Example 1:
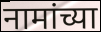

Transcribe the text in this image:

नामांच्या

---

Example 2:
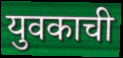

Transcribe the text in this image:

युवकाची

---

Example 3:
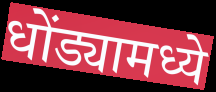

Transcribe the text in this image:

धोंड्यामध्ये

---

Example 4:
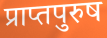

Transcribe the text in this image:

प्राप्तपुरुष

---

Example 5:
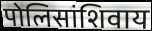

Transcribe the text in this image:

पोलिसांशिवाय